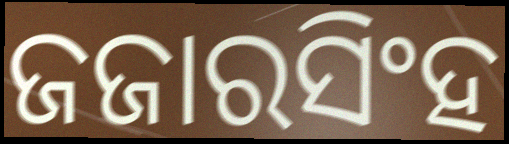
ଜଜାରସିଂହ